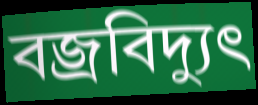
বজ্রবিদ্যুৎ